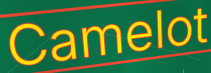
Camelot